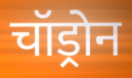
चॉड्रोन